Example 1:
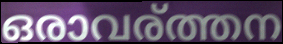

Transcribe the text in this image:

ഒരാവര്ത്തന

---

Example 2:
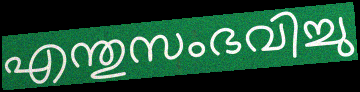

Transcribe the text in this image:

എന്തുസംഭവിച്ചു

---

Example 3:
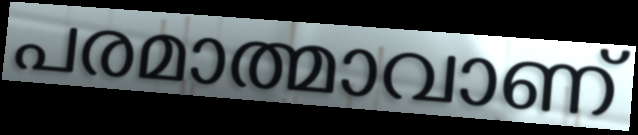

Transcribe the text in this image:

പരമാത്മാവാണ്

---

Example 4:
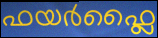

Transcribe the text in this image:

ഫയർഫ്ലൈ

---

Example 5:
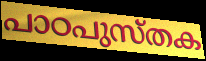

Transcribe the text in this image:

പാഠപുസ്തക